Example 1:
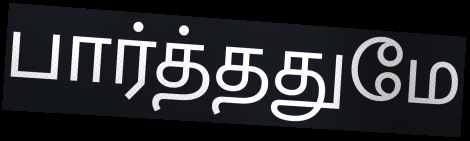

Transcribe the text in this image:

பார்த்ததுமே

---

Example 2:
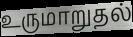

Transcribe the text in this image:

உருமாறுதல்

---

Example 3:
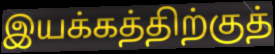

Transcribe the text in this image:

இயக்கத்திற்குத்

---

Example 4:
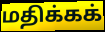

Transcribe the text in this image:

மதிக்கக்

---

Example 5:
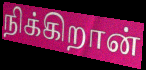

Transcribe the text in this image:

நிக்கிறான்